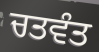
ਚਤਵੰਤ